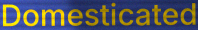
Domesticated